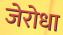
जेरोधा